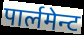
पार्लमेन्ट